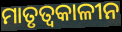
ମାତୃତ୍ୱକାଳୀନ